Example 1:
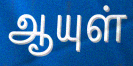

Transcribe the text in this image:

ஆயுள்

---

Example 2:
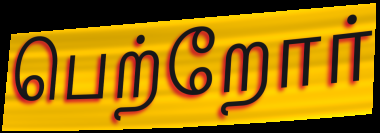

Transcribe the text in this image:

பெற்றோர்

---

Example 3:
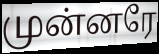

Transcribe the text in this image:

முன்னரே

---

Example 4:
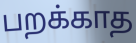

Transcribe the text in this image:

பறக்காத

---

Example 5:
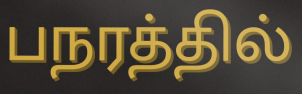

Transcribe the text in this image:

பநரத்தில்